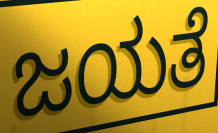
ಜಯತೆ